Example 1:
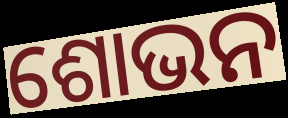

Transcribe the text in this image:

ଶୋଭନ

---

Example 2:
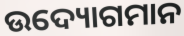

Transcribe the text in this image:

ଉଦ୍ୟୋଗମାନ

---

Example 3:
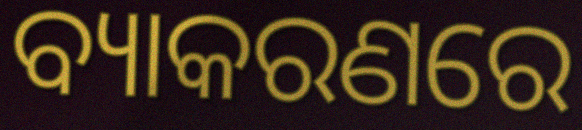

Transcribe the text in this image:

ବ୍ୟାକରଣରେ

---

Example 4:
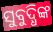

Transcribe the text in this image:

ସୁବୁଦ୍ଧିଙ୍କ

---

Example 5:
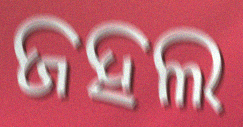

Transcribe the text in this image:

ଜହଲ